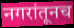
नगरांतूनच